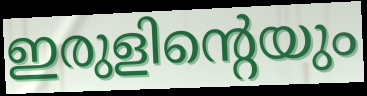
ഇരുളിന്റെയും